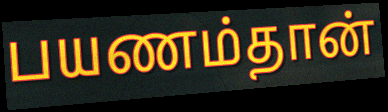
பயணம்தான்